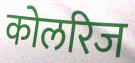
कोलरिज